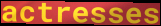
actresses